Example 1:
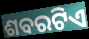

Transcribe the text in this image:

ଶବରଟିଏ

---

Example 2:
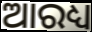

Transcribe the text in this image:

ଆରଧ୍ୟ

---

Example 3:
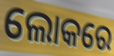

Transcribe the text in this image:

ଲୋକରେ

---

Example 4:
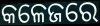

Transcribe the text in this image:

କଳେଜରେ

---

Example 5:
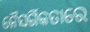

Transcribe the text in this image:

ନୈସର୍ଗିକତାରେ